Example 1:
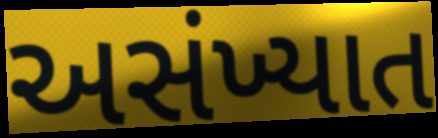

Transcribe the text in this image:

અસંખ્યાત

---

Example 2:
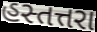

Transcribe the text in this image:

હસ્તત્તરા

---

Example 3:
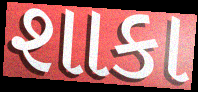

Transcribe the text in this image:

શાકા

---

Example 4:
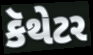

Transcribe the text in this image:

કૅથેટર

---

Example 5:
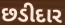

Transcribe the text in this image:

છડીદાર